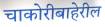
चाकोरीबाहेरील